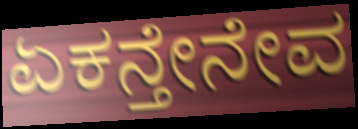
ಏಕನ್ತೇನೇವ